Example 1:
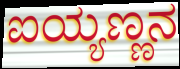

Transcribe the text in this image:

ಐಯ್ಯಣ್ಣನ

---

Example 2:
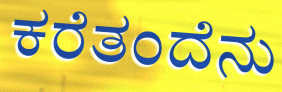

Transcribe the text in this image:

ಕರೆತಂದೆನು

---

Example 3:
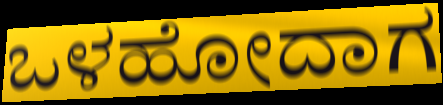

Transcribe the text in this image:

ಒಳಹೋದಾಗ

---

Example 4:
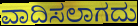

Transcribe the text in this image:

ವಾದಿಸಲಾಗದು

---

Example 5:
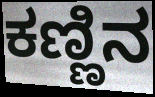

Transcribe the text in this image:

ಕಣ್ಣಿನ